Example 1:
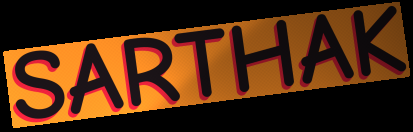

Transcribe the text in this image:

SARTHAK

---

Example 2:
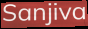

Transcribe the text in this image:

Sanjiva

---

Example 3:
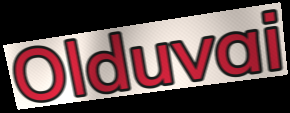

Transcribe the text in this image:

Olduvai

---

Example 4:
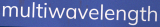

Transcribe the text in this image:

multiwavelength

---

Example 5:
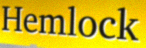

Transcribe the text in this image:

Hemlock